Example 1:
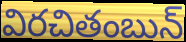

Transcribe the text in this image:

విరచితంబున్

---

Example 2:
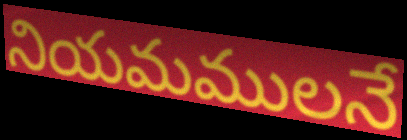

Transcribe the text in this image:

నియమములనే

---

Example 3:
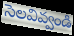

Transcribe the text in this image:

సెలవివ్వండి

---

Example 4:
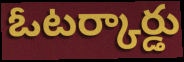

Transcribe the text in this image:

ఓటర్కార్డు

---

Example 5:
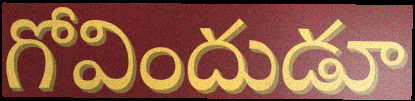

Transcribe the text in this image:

గోవిందుడూ